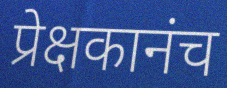
प्रेक्षकानंच